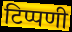
टिप्पणी